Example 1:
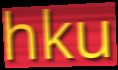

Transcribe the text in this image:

hku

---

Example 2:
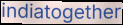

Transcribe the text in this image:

indiatogether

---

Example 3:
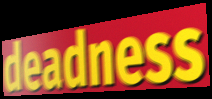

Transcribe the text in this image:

deadness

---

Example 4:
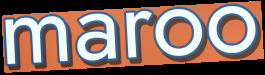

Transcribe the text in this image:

maroo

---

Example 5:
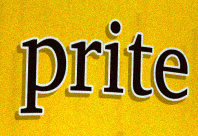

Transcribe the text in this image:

prite